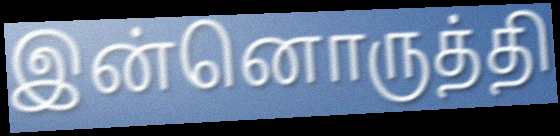
இன்னொருத்தி